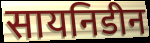
सायनिडीन